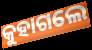
କୁହାଗଲେ